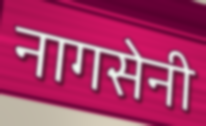
नागसेनी